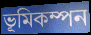
ভূমিকম্পন